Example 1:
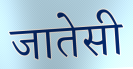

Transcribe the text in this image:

जातेसी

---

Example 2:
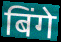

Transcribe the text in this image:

बिंगे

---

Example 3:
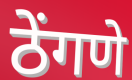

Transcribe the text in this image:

ठेंगणे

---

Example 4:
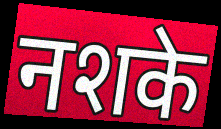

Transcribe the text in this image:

नशके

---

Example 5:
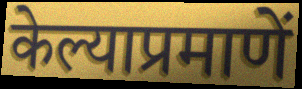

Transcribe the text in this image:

केल्याप्रमाणें